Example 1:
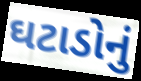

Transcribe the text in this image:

ઘટાડોનું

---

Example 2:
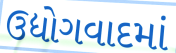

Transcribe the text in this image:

ઉદ્યોગવાદમાં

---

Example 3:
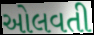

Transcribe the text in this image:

ઓલવતી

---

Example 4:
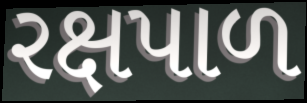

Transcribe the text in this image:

રક્ષપાળ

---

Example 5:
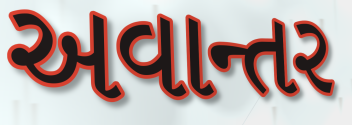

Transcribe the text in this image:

અવાન્તર